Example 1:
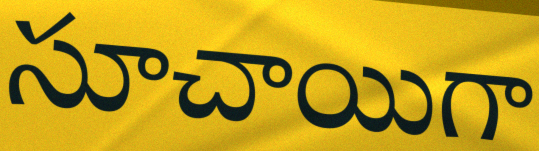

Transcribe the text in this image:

సూచాయిగా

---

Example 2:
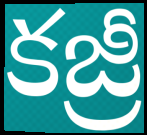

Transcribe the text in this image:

కజ్రీ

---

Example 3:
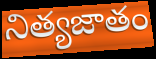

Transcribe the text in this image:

నిత్యజాతం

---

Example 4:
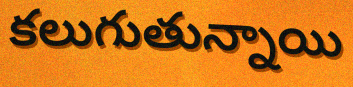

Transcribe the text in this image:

కలుగుతున్నాయి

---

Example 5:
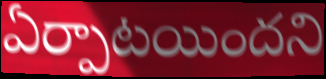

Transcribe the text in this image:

ఏర్పాటయిందని